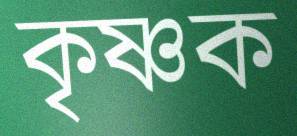
কৃষ্ণক